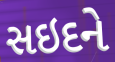
સઇદને